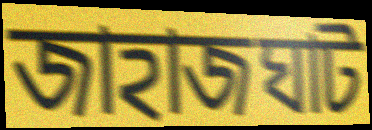
জাহাজঘাট